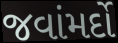
જવાંમર્દો